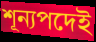
শূন্যপদেই